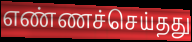
எண்ணச்செய்தது